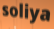
soliya